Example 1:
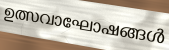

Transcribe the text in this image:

ഉത്സവാഘോഷങ്ങൾ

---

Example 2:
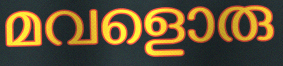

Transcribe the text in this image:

മവളൊരു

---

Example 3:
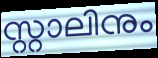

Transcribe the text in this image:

സ്റ്റാലിനും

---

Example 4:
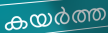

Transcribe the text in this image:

കയർത്ത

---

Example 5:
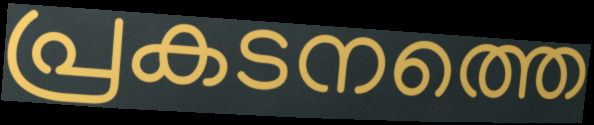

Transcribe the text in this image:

പ്രകടനത്തെ